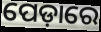
ପେଡ଼ାରେ